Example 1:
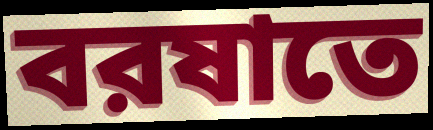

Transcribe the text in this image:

বরষাতে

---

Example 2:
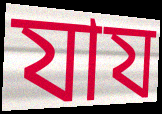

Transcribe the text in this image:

যায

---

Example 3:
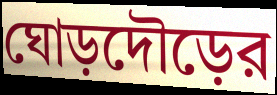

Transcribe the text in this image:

ঘোড়দৌড়ের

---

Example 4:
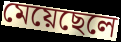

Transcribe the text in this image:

মেয়েছেলে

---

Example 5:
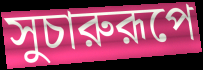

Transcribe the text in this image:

সুচারুরূপে